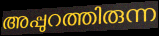
അപ്പുറത്തിരുന്ന